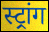
स्ट्रांग